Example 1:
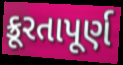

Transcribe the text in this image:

ક્રૂરતાપૂર્ણ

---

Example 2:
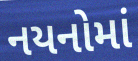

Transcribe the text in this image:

નયનોમાં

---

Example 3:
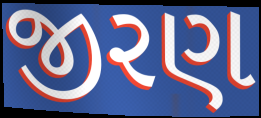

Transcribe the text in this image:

જીરણ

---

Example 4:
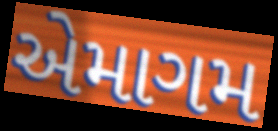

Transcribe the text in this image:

એમાગમ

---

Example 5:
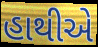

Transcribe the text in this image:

હાથીએ